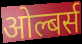
ओल्बर्स